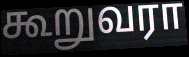
கூறுவரா